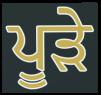
ਪੂੜੇ